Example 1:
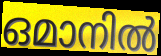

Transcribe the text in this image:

ഒമാനിൽ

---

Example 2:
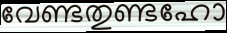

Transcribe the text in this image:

വേണ്ടതുണ്ടഹോ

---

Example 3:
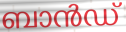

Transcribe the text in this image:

ബാൻഡ്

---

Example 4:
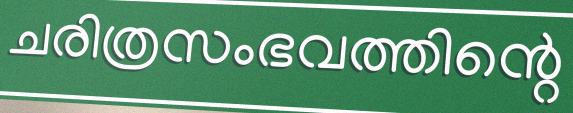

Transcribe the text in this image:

ചരിത്രസംഭവത്തിന്റെ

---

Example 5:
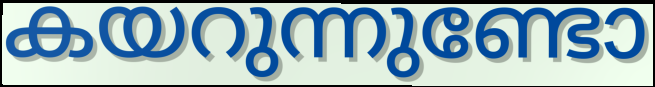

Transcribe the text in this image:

കയറുന്നുണ്ടോ